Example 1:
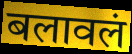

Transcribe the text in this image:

बलावलं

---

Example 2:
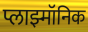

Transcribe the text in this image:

प्लाझ्मॉनिक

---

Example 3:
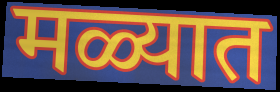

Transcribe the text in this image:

मळ्यात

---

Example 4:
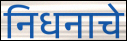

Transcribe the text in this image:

निधनाचे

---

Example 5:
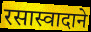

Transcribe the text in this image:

रसास्वादाने